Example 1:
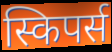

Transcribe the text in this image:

स्किपर्स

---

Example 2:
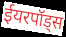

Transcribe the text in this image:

ईयरपॉड्स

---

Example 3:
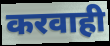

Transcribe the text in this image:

करवाही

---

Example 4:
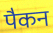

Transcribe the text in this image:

पैकन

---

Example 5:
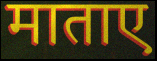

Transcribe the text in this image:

माताए